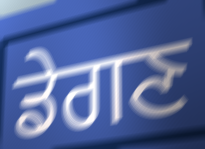
ਡੇਗਣ